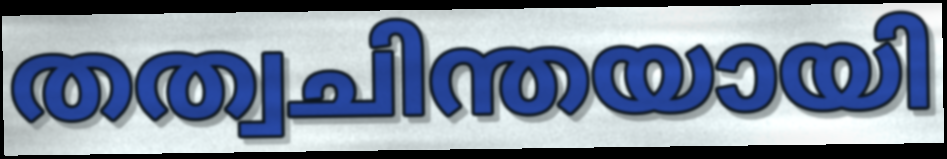
തത്വചിന്തയായി